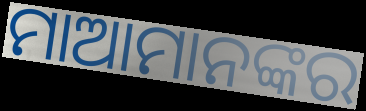
ମାଆମାନଙ୍କର